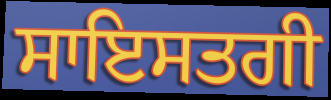
ਸਾਇਸਤਗੀ